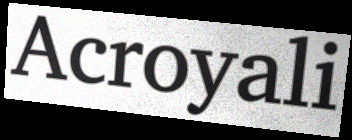
Acroyali